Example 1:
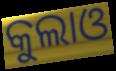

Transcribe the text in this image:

କୁଲାଓ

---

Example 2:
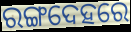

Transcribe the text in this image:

ରଙ୍ଗଦେହରେ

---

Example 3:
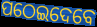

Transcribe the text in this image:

ପଠେଇଦେବେ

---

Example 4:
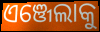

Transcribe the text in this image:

ଏଞ୍ଜେଲାକୁ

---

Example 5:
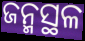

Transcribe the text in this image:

ଜନ୍ମସ୍ଥଳ